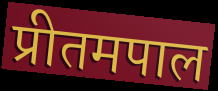
प्रीतमपाल